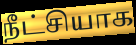
நீட்சியாக